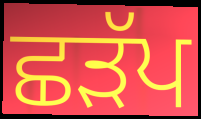
ਛੜੱਪ